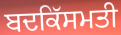
ਬਦਕਿੱਸਮਤੀ